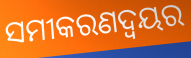
ସମୀକରଣଦ୍ଵୟର